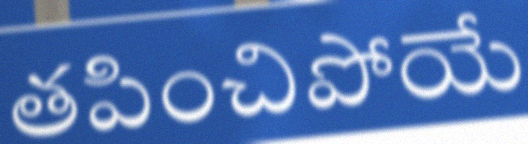
తపించిపోయే